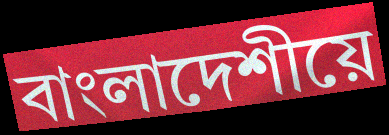
বাংলাদেশীয়ে